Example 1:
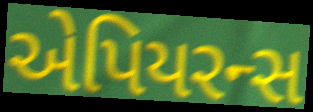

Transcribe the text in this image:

એપિયરન્સ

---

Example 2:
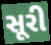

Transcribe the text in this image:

સૂરી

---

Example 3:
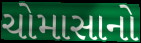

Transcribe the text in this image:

ચોમાસાનો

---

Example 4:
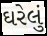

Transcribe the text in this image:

ઘરેલું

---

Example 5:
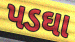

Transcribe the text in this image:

પડઘા